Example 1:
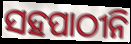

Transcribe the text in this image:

ସହପାଠୀନି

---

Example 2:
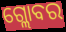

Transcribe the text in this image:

ଗ୍ଲୋବର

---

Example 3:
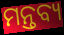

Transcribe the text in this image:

ମନ୍ତବ୍ଯ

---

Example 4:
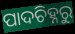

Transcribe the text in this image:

ପାଦଚିହ୍ନରୁ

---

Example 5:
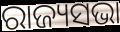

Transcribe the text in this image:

ରାଜ୍ୟସଭା